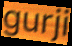
gurji